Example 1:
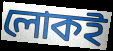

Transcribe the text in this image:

লোকই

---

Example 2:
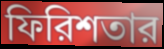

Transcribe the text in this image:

ফিরিশতার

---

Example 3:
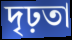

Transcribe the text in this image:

দৃঢ়তা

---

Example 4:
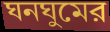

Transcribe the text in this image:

ঘনঘুমের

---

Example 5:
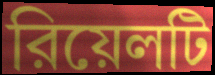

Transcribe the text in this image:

রিয়েলটি